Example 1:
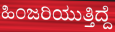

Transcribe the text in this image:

ಹಿಂಜರಿಯುತ್ತಿದ್ದೆ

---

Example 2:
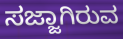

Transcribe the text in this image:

ಸಜ್ಜಾಗಿರುವ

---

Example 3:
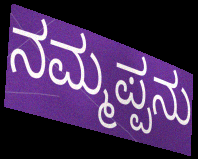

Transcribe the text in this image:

ನಮ್ಮಪ್ಪನು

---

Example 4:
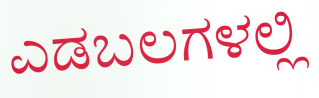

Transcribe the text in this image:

ಎಡಬಲಗಳಲ್ಲಿ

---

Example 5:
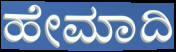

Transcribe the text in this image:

ಹೇಮಾದಿ